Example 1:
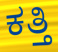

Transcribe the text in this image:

ಕತ್ತಿ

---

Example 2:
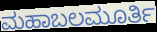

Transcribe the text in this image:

ಮಹಾಬಲಮೂರ್ತಿ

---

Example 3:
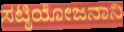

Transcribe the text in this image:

ಸಟ್ಠಿಯೋಜನಾನಿ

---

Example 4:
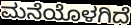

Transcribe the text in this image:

ಮನೆಯೊಳಗಿದೆ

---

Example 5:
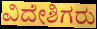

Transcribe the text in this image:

ವಿದೇಶಿಗರು